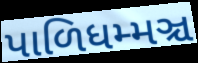
પાળિધમ્મઞ્ચ